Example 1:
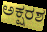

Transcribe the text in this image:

ಅಕ್ಷರಶ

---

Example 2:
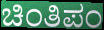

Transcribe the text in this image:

ಚಿಂತಿಪಂ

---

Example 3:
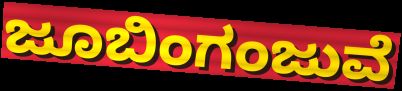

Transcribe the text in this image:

ಜೂಬಿಂಗಂಜುವೆ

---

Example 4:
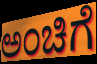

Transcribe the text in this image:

ಅಂಚಿಗೆ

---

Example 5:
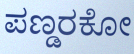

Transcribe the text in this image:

ಪಣ್ಡರಕೋ